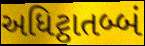
અધિટ્ઠાતબ્બં